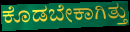
ಕೊಡಬೇಕಾಗಿತ್ತು